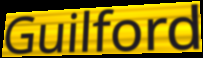
Guilford